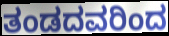
ತಂಡದವರಿಂದ